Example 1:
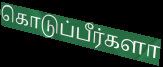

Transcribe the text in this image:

கொடுப்பீர்களா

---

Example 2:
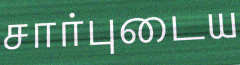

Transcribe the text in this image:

சார்புடைய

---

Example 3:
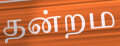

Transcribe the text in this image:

தன்றம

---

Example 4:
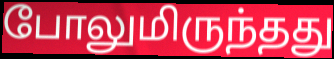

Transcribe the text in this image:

போலுமிருந்தது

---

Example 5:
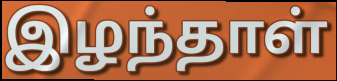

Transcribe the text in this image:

இழந்தாள்